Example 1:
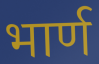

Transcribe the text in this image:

भार्ण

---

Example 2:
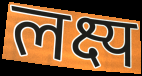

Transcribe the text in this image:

लक्ष्य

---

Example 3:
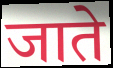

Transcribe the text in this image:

जाते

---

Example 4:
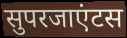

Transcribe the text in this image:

सुपरजाएंटस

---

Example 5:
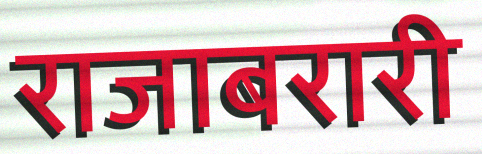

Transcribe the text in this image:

राजाबरारी